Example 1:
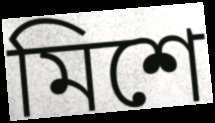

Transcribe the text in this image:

মিশে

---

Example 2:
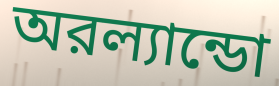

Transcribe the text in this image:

অরল্যান্ডো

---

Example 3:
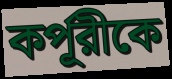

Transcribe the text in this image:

কর্পূরীকে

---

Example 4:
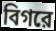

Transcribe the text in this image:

বিগরে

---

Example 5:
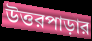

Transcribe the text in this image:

উত্তরপাড়ার